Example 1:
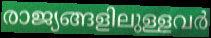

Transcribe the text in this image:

രാജ്യങ്ങളിലുള്ളവർ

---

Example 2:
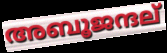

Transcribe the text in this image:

അബൂജന്ദല്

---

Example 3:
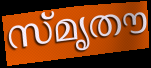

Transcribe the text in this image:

സ്മൃതൗ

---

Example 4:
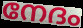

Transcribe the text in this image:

നേദം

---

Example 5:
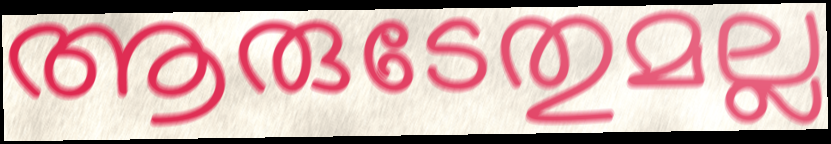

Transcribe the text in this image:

ആരുടേതുമല്ല